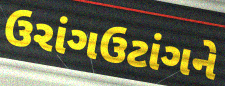
ઉરાંગઉટાંગને